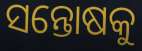
ସନ୍ତୋଷକୁ